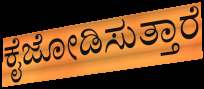
ಕೈಜೋಡಿಸುತ್ತಾರೆ